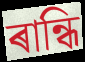
ৰান্ধি